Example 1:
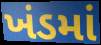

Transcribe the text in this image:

ખંડમાં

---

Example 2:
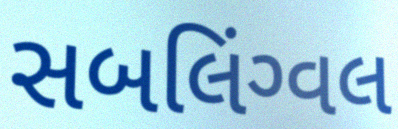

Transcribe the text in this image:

સબલિંગ્વલ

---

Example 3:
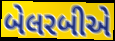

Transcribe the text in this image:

બેલરબીએ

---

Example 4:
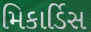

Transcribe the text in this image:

મિકાર્ડિસ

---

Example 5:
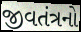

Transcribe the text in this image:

જીવતંત્રનો